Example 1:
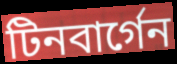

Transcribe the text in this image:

টিনবার্গেন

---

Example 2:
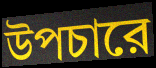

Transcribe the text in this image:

উপচারে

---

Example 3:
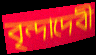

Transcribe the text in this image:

বৃন্দাদেবী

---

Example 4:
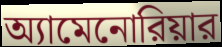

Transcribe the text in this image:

অ্যামেনোরিয়ার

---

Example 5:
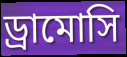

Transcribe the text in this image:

ড্রামোসি